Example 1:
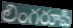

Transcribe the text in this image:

లింగరూపి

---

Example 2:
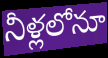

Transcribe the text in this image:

నీళ్లలోనూ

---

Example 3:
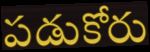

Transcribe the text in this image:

పడుకోరు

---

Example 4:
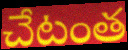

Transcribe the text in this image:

చేటంత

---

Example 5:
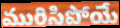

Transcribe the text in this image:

మురిసిపోయే